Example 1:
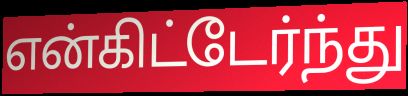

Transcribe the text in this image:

என்கிட்டேர்ந்து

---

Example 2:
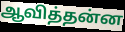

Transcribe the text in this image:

ஆவித்தன்ன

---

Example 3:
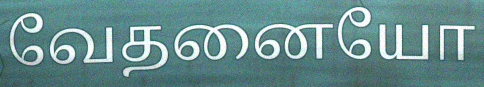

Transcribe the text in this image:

வேதனையோ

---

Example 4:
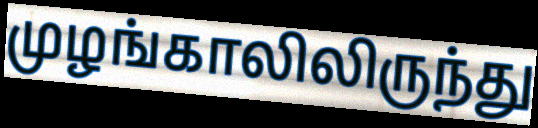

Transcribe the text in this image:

முழங்காலிலிருந்து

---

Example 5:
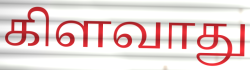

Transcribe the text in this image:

கிளவாது